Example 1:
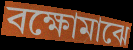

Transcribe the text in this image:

বক্ষোমাঝে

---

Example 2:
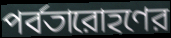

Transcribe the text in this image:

পর্বতারোহণের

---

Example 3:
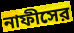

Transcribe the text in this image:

নাফীসের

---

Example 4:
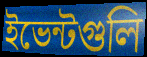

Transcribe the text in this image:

ইভেন্টগুলি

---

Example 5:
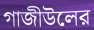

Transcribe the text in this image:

গাজীউলের